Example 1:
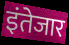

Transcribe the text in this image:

इंतेजार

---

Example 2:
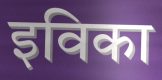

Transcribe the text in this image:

इविका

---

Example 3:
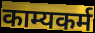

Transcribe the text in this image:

काम्यकर्म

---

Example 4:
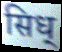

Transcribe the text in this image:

सिध्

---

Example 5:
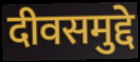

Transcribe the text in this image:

दीवसमुद्दे